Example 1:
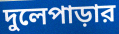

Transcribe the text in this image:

দুলেপাড়ার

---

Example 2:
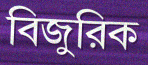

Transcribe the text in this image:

বিজুরিক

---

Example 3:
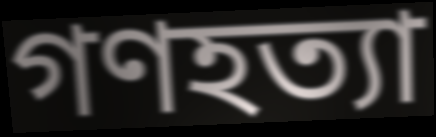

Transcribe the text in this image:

গণহত্যা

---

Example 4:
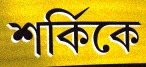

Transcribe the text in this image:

শর্কিকে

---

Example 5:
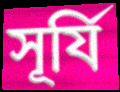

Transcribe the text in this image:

সূর্যি